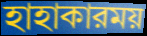
হাহাকারময়